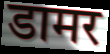
डामर